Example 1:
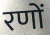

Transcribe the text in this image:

रणों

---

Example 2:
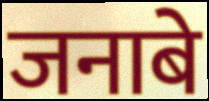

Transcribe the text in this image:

जनाबे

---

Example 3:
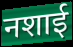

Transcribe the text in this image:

नशाई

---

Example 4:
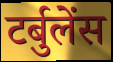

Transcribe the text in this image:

टर्बुलेंस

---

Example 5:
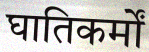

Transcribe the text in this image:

घातिकर्मों